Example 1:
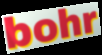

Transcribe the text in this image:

bohr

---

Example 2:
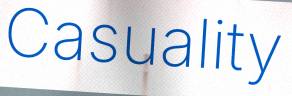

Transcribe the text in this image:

Casuality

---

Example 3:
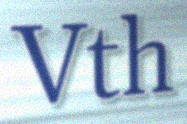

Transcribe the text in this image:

Vth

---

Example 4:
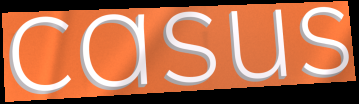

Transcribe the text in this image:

casus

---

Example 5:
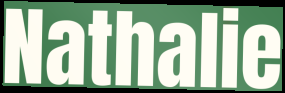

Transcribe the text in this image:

Nathalie